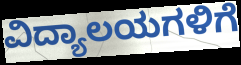
ವಿದ್ಯಾಲಯಗಳಿಗೆ